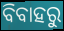
ବିବାହରୁ